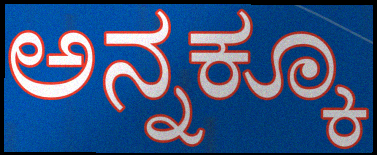
ಅನ್ನಕ್ಕೂ